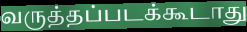
வருத்தப்படக்கூடாது